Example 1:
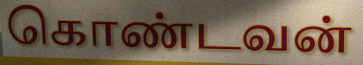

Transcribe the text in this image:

கொண்டவன்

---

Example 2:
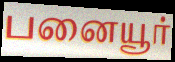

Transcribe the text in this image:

பனையூர்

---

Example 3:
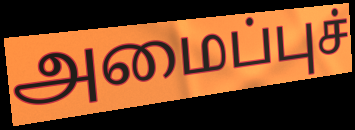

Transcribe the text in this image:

அமைப்புச்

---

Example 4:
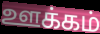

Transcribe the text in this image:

ஊக்கம்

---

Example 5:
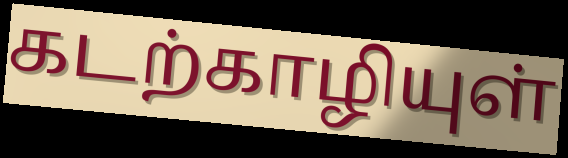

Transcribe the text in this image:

கடற்காழியுள்